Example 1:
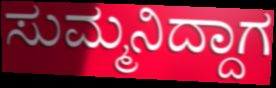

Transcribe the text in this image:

ಸುಮ್ಮನಿದ್ದಾಗ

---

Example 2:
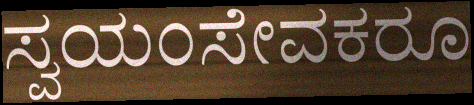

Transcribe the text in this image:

ಸ್ವಯಂಸೇವಕರೂ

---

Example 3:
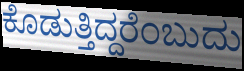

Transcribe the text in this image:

ಕೊಡುತ್ತಿದ್ದರೆಂಬುದು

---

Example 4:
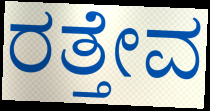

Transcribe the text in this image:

ರತ್ತೇವ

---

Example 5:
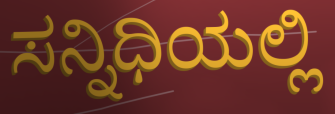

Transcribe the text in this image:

ಸನ್ನಿಧಿಯಲ್ಲಿ